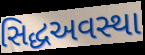
સિદ્ધઅવસ્થા